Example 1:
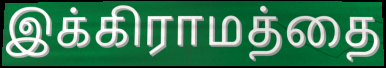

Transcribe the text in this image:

இக்கிராமத்தை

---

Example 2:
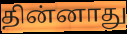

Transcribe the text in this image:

தின்னாது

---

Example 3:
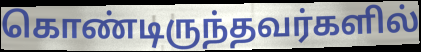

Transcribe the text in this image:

கொண்டிருந்தவர்களில்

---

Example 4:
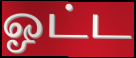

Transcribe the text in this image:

ஓட்ட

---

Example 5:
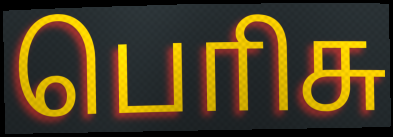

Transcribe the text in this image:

பெரிசு